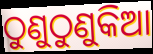
ଠୁଣୁଠୁଣୁକିଆ